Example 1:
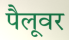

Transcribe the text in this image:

पैलूवर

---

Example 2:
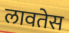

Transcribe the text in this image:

लावतेस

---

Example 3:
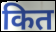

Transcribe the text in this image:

कित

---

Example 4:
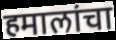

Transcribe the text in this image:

हमालांचा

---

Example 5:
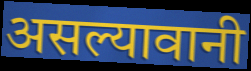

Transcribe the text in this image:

असल्यावानी